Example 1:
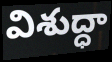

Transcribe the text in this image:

విశుద్ధా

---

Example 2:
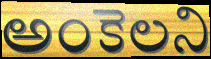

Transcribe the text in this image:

అంకెలని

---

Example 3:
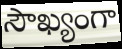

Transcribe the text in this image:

సౌఖ్యంగా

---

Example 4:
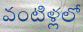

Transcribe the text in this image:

వంటిళ్లలో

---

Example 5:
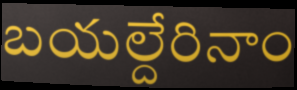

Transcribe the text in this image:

బయల్దేరినాం